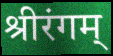
श्रीरंगम्